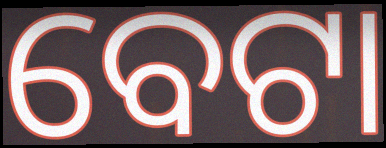
ବେଟା